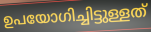
ഉപയോഗിച്ചിട്ടുള്ളത്